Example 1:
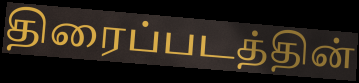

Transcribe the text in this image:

திரைப்படத்தின்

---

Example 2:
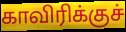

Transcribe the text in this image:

காவிரிக்குச்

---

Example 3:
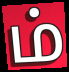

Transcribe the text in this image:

ம்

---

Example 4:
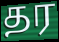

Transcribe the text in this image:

தர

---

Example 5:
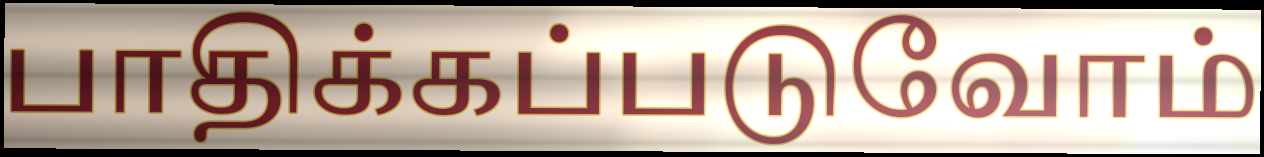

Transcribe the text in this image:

பாதிக்கப்படுவோம்